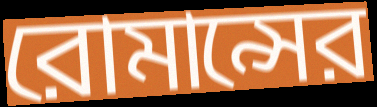
রোমান্সের